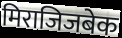
मिराजिजबेक